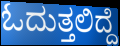
ಓದುತ್ತಲಿದ್ದೆ